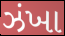
ઝંખા